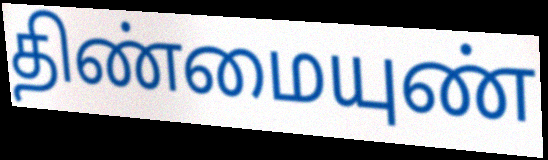
திண்மையுண்